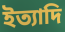
ইত্যাদি